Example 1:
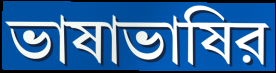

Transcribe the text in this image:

ভাষাভাষির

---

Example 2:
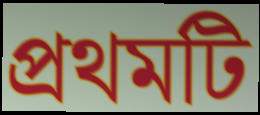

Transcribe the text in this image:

প্রথমটি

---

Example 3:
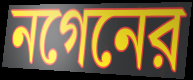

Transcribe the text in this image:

নগেনের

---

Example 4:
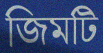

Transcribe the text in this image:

জিমটি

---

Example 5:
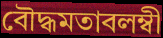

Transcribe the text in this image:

বৌদ্ধমতাবলম্বী